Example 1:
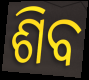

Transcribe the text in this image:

ଶିବ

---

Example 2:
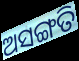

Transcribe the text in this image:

ଅସଙ୍ଗତି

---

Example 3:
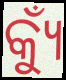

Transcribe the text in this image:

କ୍ୟୁଁ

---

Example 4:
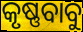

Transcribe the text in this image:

କୃଷ୍ଣବାବୁ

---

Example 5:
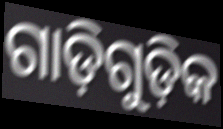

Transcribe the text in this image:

ଗାଡ଼ିଗୁଡ଼ିକ